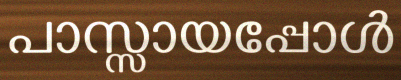
പാസ്സായപ്പോൾ